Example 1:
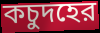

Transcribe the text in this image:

কচুদহের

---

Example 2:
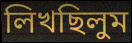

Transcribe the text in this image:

লিখছিলুম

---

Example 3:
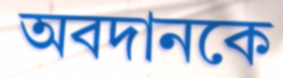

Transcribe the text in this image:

অবদানকে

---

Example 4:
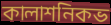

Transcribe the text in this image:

কালাশনিকভ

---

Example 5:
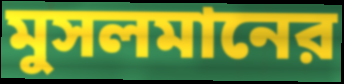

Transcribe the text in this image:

মুসলমানের